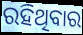
ରହିଥିବାର